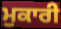
ਮੁਕਾਰੀ